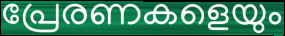
പ്രേരണകളെയും